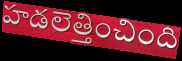
హడలెత్తించింది